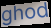
ghod